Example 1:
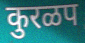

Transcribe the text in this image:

कुरळप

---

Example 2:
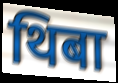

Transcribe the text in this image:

थिबा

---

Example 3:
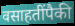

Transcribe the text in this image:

वसाहतींपैकी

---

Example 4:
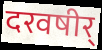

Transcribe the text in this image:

दरवषीर्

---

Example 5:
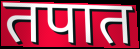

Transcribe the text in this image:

तपात